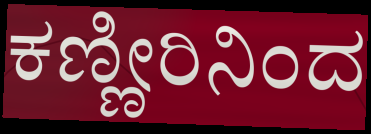
ಕಣ್ಣೀರಿನಿಂದ